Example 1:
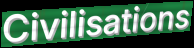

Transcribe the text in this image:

Civilisations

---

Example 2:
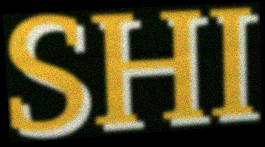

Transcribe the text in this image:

SHI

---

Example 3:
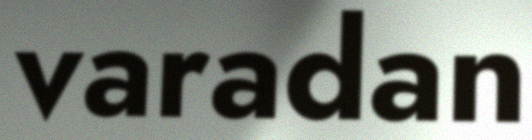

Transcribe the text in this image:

varadan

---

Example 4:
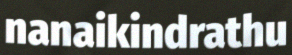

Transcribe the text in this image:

nanaikindrathu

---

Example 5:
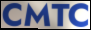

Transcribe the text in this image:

CMTC